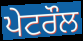
ਪੇਟਰੌਲ